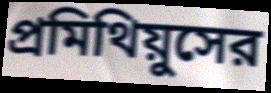
প্রমিথিয়ুসের